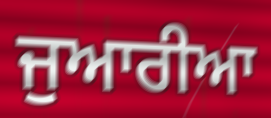
ਜੁਆਰੀਆ